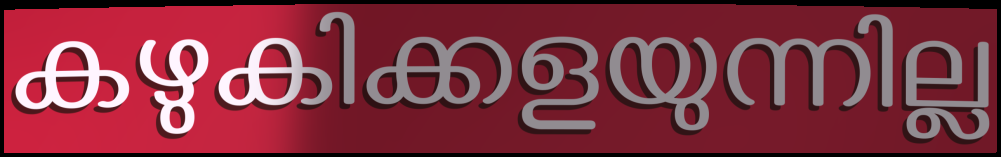
കഴുകിക്കളയുന്നില്ല